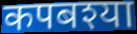
कपबश्या